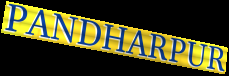
PANDHARPUR